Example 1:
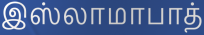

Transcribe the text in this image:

இஸ்லாமாபாத்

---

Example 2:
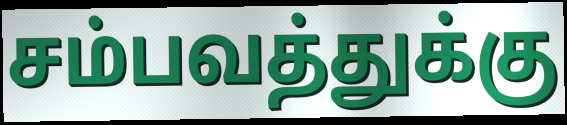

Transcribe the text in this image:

சம்பவத்துக்கு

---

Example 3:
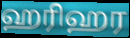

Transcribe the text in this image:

ஹரிஹர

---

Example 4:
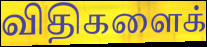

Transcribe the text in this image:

விதிகளைக்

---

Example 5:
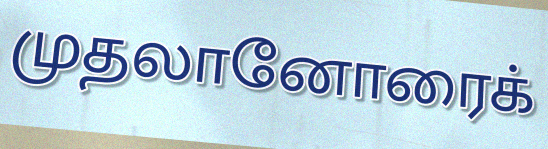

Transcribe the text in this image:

முதலானோரைக்